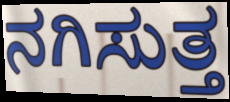
ನಗಿಸುತ್ತ